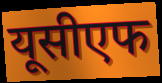
यूसीएफ